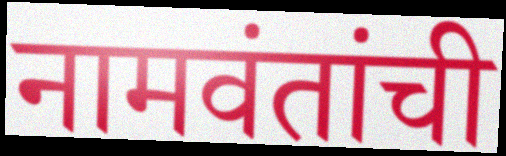
नामवंतांची